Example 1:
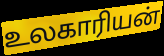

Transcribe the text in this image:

உலகாரியன்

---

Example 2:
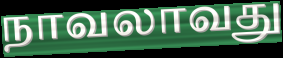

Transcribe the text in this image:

நாவலாவது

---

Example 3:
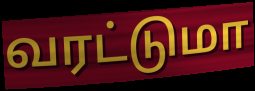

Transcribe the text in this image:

வரட்டுமா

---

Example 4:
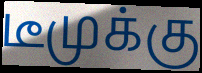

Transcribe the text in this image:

டீமுக்கு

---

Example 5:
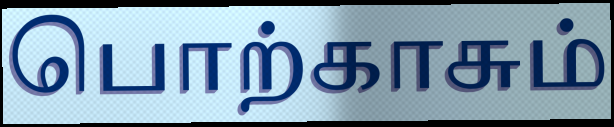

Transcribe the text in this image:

பொற்காசும்